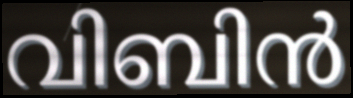
വിബിൻ